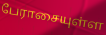
பேராசையுள்ள